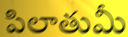
పిలాతుమీ